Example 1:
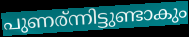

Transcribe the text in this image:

പുണര്ന്നിട്ടുണ്ടാകും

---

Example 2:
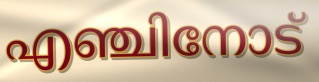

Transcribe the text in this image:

എഞ്ചിനോട്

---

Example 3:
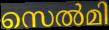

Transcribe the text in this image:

സെൽമി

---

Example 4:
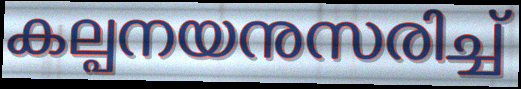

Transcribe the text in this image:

കല്പനയനുസരിച്ച്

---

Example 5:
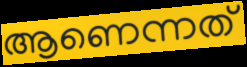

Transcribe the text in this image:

ആണെന്നത്